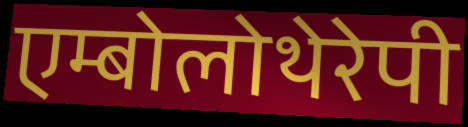
एम्बोलोथेरेपी